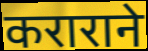
कराराने